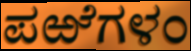
ಪಱೆಗಳಂ